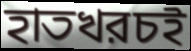
হাতখরচই